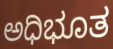
ಅಧಿಭೂತ